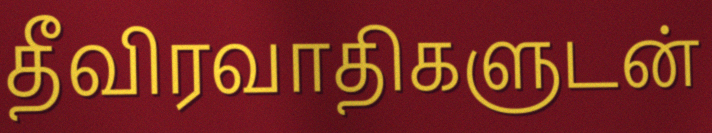
தீவிரவாதிகளுடன்